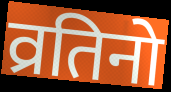
व्रतिनो